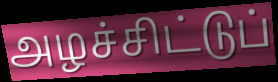
அழச்சிட்டுப்